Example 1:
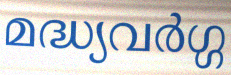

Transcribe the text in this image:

മദ്ധ്യവർഗ്ഗ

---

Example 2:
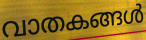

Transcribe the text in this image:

വാതകങ്ങൾ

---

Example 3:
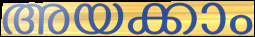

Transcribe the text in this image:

അയക്കാം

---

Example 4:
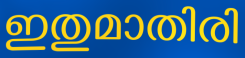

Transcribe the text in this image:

ഇതുമാതിരി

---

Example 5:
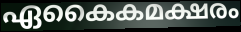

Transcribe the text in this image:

ഏകൈകമക്ഷരം